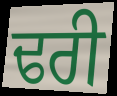
ਢਰੀ